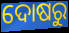
ଦୋଷରୁ